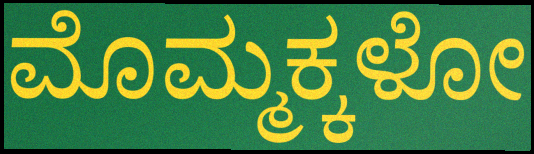
ಮೊಮ್ಮಕ್ಕಳೋ